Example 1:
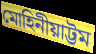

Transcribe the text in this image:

মোহিনীয়াট্টম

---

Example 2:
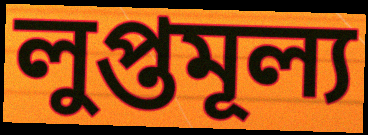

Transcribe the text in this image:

লুপ্তমূল্য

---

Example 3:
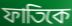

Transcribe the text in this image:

ফাতিকে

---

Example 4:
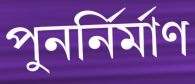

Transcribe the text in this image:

পুনর্নির্মাণ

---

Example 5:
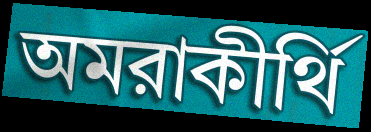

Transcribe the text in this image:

অমরাকীর্থি